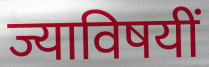
ज्याविषयीं